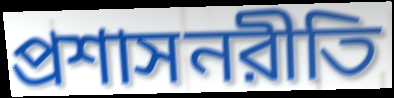
প্রশাসনরীতি